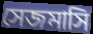
সেজমাসি